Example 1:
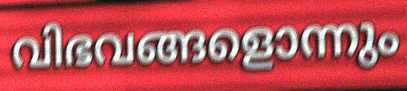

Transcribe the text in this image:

വിഭവങ്ങളൊന്നും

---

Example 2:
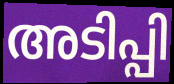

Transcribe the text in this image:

അടിപ്പി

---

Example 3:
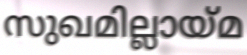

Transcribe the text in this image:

സുഖമില്ലായ്മ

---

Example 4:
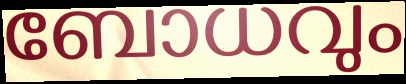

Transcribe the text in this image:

ബോധവും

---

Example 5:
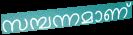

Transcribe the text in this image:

സമ്പന്നമാണ്